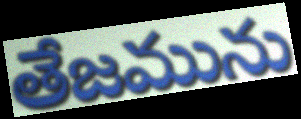
తేజమును